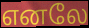
எனலே